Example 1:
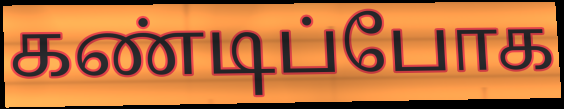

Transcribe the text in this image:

கண்டிப்போக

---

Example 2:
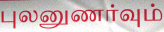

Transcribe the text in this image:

புலனுணர்வும்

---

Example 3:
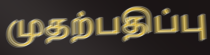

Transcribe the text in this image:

முதற்பதிப்பு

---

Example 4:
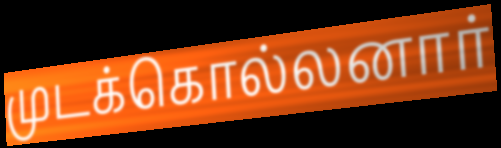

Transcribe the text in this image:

முடக்கொல்லனார்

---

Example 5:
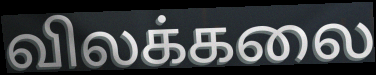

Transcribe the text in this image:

விலக்கலை